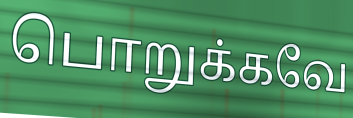
பொறுக்கவே